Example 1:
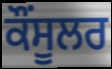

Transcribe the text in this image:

ਕੌਂਸੂਲਰ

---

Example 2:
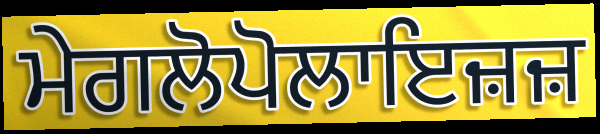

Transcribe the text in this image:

ਮੇਗਲੋਪੋਲਾਇਜ਼ਜ਼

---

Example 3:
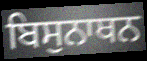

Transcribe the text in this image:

ਬਿਸੁਨਾਥਨ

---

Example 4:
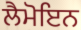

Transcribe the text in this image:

ਲੈਮੋਇਨ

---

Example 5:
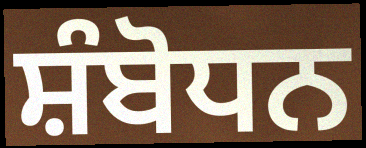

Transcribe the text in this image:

ਸ਼ੰਬੋਧਨ